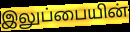
இலுப்பையின்